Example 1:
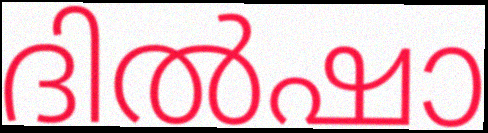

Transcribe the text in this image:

ദിൽഷാ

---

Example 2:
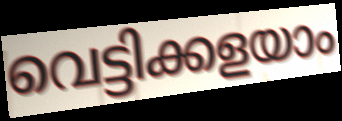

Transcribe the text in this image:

വെട്ടിക്കളയാം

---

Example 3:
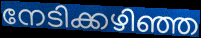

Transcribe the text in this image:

നേടിക്കഴിഞ്ഞ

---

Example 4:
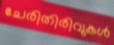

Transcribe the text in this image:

ചേരിതിരിവുകൾ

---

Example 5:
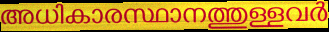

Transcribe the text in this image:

അധികാരസ്ഥാനത്തുള്ളവർ